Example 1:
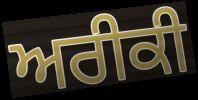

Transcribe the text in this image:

ਅਰੀਕੀ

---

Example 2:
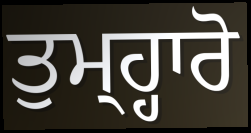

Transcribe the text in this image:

ਤੁਮ੍ਹ੍ਹਾਰੋ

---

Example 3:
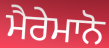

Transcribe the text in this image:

ਮੈਰੇਮਾਨੋ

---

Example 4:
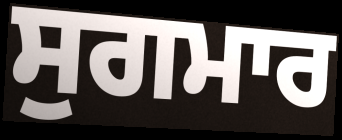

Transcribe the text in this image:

ਸੁਗਮਾਰ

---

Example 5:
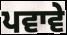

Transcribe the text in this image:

ਪਵਾਵੇ